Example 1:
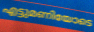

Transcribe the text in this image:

എട്ടുമണിയോടെ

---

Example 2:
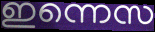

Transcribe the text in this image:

ഇന്നെസ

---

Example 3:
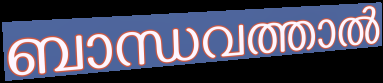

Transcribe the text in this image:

ബാന്ധവത്താൽ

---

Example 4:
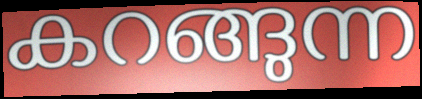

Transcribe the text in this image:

കറങ്ങുന്ന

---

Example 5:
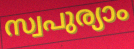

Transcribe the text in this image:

സ്വപുര്യാം